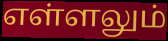
எள்ளலும்